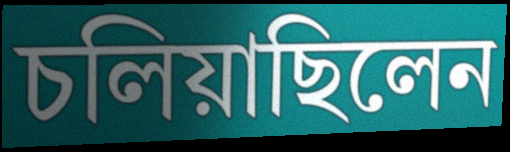
চলিয়াছিলেন